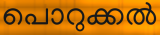
പൊറുക്കൽ